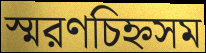
স্মরণচিহ্নসম